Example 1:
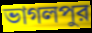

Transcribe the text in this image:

ভাগলপুর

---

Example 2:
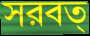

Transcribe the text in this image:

সরবত্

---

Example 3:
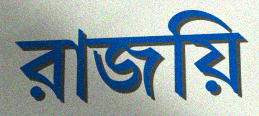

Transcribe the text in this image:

রাজয়ি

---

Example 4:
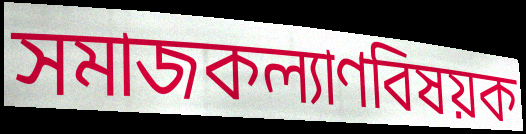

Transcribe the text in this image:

সমাজকল্যাণবিষয়ক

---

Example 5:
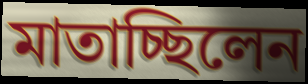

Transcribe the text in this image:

মাতাচ্ছিলেন